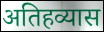
अतिहव्यास